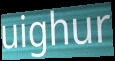
uighur